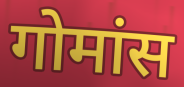
गोमांस